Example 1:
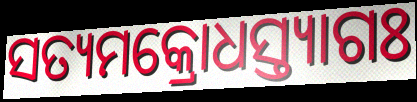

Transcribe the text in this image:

ସତ୍ୟମକ୍ରୋଧସ୍ତ୍ୟାଗଃ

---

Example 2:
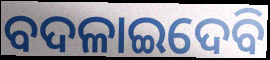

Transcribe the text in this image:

ବଦଳାଇଦେବି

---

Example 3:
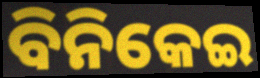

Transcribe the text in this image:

ବିନିକେଇ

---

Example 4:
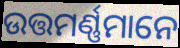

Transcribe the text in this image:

ଉତ୍ତମର୍ଣ୍ଣମାନେ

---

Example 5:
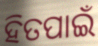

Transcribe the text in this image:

ହିତପାଇଁ